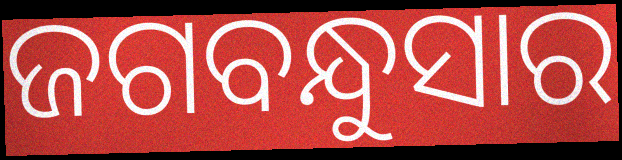
ଜଗବନ୍ଧୁସାର